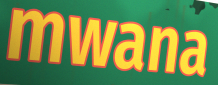
mwana